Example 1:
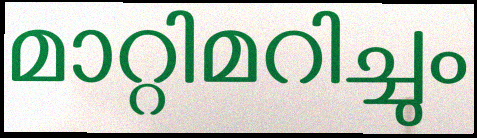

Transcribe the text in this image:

മാറ്റിമറിച്ചും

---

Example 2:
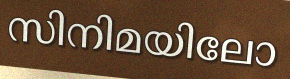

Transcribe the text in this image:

സിനിമയിലോ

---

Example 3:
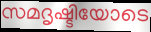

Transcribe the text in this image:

സമദൃഷ്ടിയോടെ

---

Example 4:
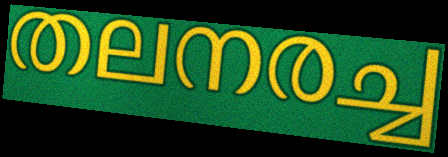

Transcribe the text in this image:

തലനരച്ച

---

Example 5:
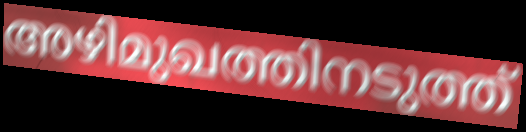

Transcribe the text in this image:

അഴിമുഖത്തിനടുത്ത്